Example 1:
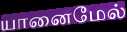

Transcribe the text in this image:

யானைமேல்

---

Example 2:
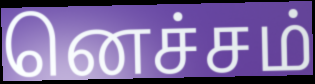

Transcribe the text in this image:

னெச்சம்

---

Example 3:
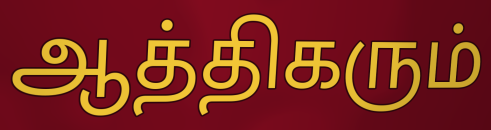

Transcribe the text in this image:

ஆத்திகரும்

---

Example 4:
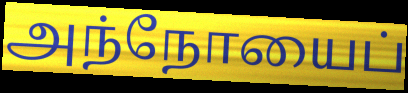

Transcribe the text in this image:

அந்நோயைப்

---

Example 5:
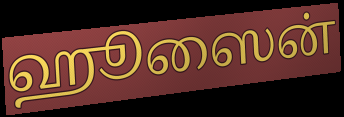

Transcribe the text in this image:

ஹூஸைன்